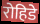
रोहिडे